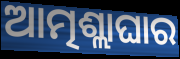
ଆତ୍ମଶ୍ଲାଘାର